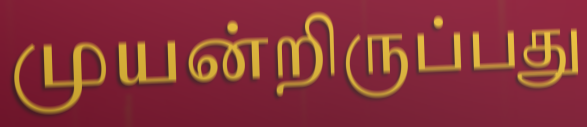
முயன்றிருப்பது